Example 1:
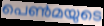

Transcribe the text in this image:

പെൺമയുടെ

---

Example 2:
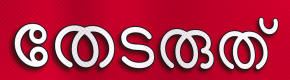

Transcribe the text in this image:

തേടരുത്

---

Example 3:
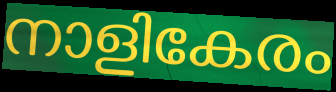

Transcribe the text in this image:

നാളികേരം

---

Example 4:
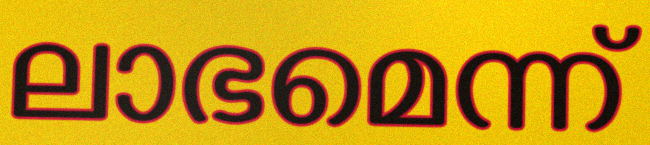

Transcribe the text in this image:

ലാഭമെന്ന്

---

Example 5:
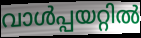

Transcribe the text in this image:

വാൾപ്പയറ്റിൽ